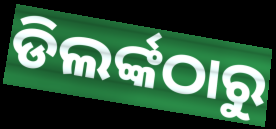
ଡିଲର୍ଙ୍କଠାରୁ